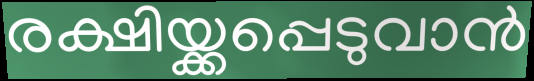
രക്ഷിയ്ക്കപ്പെടുവാൻ